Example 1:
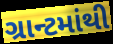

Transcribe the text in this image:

ગ્રાન્ટમાંથી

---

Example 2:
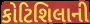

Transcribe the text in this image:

કોટિશિલાની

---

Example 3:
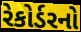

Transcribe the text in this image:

રેકોર્ડરનો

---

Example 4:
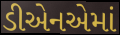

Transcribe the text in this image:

ડીએનએમાં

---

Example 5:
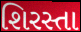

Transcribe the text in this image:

શિરસ્તા